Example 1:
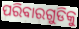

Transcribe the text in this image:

ପରିବାରଗୁଡିକୁ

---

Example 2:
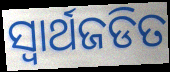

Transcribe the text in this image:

ସ୍ଵାର୍ଥଜଡିତ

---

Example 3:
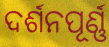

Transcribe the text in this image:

ଦର୍ଶନପୂର୍ଣ୍ଣ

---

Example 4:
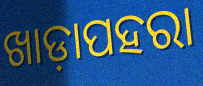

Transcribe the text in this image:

ଖାଡ଼ାପହରା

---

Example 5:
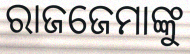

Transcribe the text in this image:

ରାଜଜେମାଙ୍କୁ